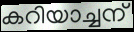
കറിയാച്ചന്